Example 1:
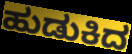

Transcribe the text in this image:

ಹುಡುಕಿದ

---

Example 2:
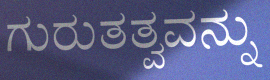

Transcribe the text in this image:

ಗುರುತತ್ವವನ್ನು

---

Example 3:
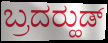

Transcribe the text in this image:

ಬ್ರದರ್‍ಹುಡ್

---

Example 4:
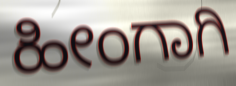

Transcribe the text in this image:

ಹೀಂಗಾಗಿ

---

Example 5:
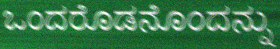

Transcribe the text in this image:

ಒಂದರೊಡನೊಂದನ್ನು